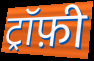
ट्रॉफ़ी